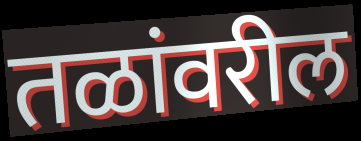
तळांवरील